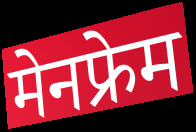
मेनफ्रेम